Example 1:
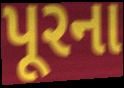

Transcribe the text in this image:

પૂરના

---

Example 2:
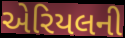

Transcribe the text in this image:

એરિયલની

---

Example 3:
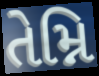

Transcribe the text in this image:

તેમ્નિ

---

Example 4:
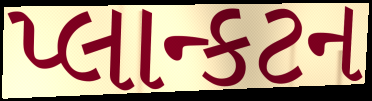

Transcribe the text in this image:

પ્લાન્કટન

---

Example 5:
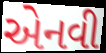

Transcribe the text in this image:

એનવી